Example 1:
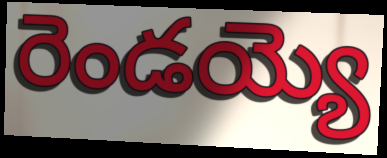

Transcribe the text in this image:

రెండయ్యె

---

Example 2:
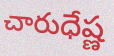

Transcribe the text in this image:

చారుధేష్ణ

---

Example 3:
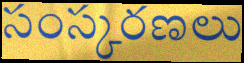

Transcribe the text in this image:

సంస్కరణలు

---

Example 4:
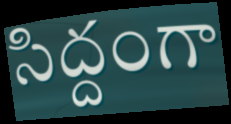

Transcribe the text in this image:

సిద్దంగా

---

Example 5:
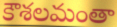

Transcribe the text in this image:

కౌశలమంతా